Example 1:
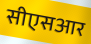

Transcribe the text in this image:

सीएसआर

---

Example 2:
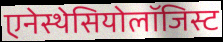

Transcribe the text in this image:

एनेस्थेसियोलॉजिस्ट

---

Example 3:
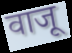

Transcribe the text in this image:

वाजू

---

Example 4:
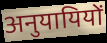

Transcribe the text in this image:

अनुयायियों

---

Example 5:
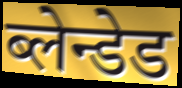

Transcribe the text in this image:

ब्लेन्डेड